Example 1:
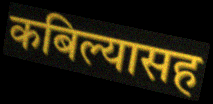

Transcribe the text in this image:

कबिल्यासह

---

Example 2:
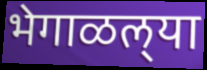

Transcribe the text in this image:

भेगाळल्या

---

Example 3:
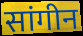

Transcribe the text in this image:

सांगीन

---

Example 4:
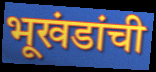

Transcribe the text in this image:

भूखंडांची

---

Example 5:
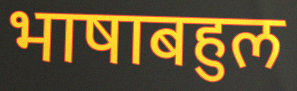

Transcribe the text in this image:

भाषाबहुल